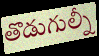
తొడుగుల్నీ